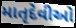
માતૃદેવીઓ